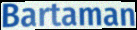
Bartaman